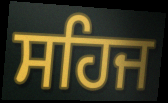
ਸਹਿਜ